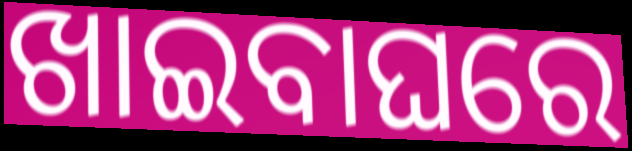
ଖାଇବାଘରେ